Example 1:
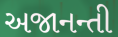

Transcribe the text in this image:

અજાનન્તી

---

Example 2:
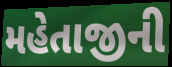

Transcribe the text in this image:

મહેતાજીની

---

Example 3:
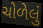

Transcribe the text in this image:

ચોળેલું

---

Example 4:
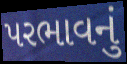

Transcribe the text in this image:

પરભાવનું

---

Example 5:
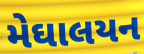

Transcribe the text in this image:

મેઘાલયન